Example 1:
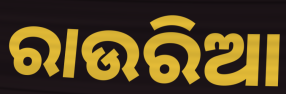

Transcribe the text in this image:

ରାଉରିଆ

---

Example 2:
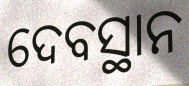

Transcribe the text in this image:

ଦେବସ୍ଥାନ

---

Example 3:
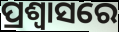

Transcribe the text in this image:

ପ୍ରଶ୍ବାସରେ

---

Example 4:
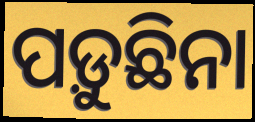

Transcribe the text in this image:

ପଡ଼ୁଛିନା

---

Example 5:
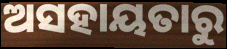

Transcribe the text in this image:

ଅସହାୟତାରୁ